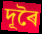
দূৰৈ